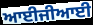
ਆਈਜੀਆਈ